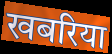
खबरिया